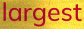
largest